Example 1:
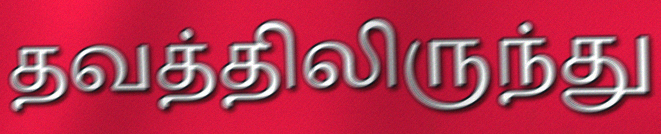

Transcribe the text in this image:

தவத்திலிருந்து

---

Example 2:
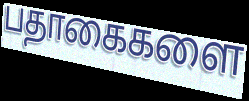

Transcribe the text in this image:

பதாகைகளை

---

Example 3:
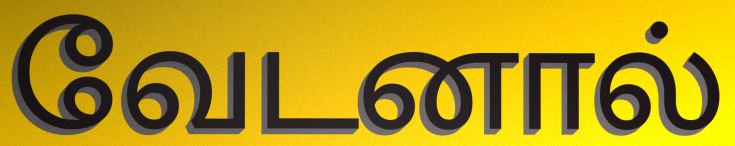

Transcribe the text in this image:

வேடனால்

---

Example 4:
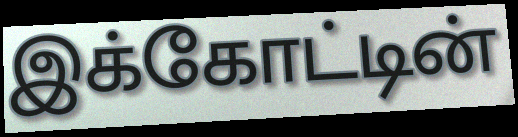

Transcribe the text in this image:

இக்கோட்டின்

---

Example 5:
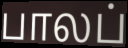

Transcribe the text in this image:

பாலப்